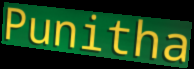
Punitha